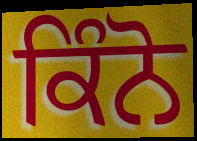
ਕਿੰਨੋ